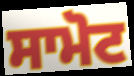
ਸਾਮੋਟ